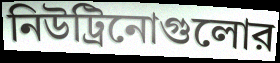
নিউট্রিনোগুলোর